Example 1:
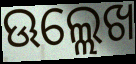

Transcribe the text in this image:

ଊଲ୍ଲେଖ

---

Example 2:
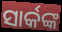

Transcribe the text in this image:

ସାର୍କଙ୍କ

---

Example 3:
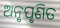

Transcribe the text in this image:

ଅନୃପୃଣିତ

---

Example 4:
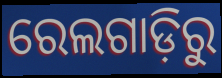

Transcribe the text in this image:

ରେଲଗାଡ଼ିରୁ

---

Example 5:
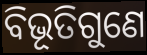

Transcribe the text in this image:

ବିଭୂତିଗୁଣେ